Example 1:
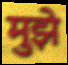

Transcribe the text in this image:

मुझे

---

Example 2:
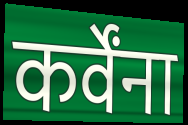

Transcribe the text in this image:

कर्वेंना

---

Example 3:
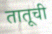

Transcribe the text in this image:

तातूची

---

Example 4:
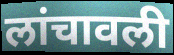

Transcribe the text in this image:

लांचावली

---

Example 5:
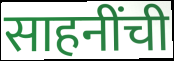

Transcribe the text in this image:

साहनींची